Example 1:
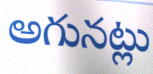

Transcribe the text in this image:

అగునట్లు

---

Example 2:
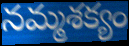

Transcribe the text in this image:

నమ్మశక్యం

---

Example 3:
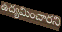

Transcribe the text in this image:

ఉద్యమించారని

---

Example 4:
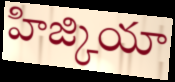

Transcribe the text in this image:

హిజ్కియా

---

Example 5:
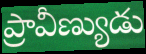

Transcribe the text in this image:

ప్రావీణ్యుడు